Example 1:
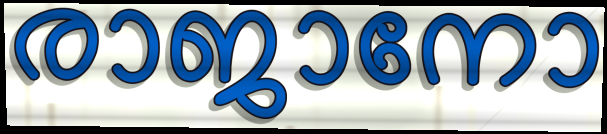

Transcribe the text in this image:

രാജാനോ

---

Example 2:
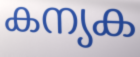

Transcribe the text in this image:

കന്യക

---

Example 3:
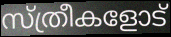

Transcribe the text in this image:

സ്ത്രീകളോട്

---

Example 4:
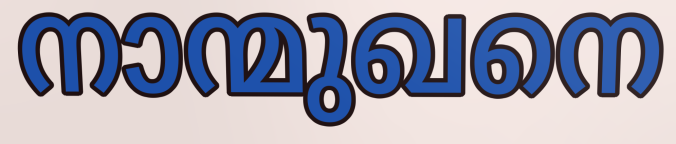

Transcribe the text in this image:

നാന്മുഖനെ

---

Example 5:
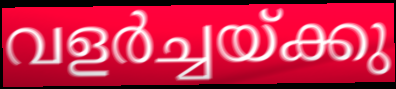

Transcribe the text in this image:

വളർച്ചയ്ക്കു